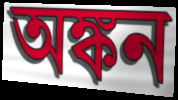
অঙ্কন